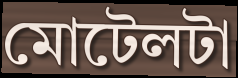
মোটেলটা